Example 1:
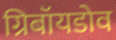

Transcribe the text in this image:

ग्रिबॉयडोव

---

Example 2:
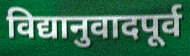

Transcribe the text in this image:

विद्यानुवादपूर्व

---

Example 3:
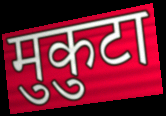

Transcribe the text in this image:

मुकुटा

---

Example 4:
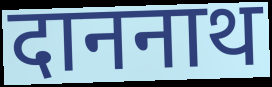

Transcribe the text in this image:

दाननाथ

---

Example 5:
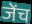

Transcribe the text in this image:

जेंच